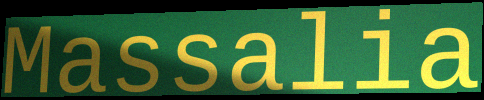
Massalia